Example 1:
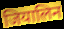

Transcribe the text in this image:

जियालिन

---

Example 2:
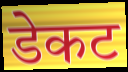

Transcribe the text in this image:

डेकट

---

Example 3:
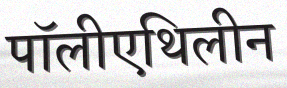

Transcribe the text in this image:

पॉलीएथिलीन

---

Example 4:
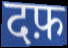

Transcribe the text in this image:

दफ़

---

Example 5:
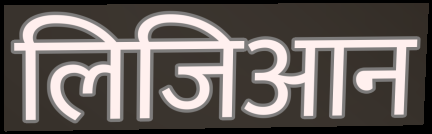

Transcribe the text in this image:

लिजिआन